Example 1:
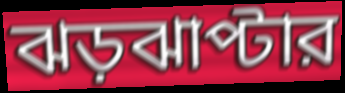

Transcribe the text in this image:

ঝড়ঝাপ্টার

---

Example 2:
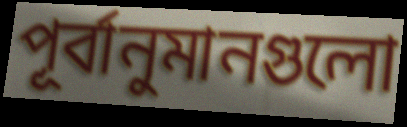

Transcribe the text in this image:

পূর্বানুমানগুলো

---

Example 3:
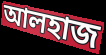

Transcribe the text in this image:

আলহাজ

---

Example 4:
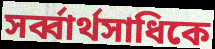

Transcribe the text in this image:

সর্ব্বার্থসাধিকে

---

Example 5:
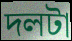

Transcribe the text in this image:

দলটা